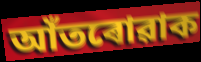
আঁতৰোৱাক